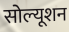
सोल्‍यूशन